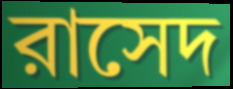
রাসেদ